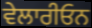
ਵੇਲਾਰੀਓਨ